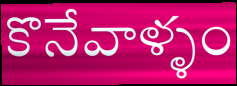
కొనేవాళ్ళం